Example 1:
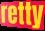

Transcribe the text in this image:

retty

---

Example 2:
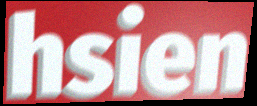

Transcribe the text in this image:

hsien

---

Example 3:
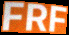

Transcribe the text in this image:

FRF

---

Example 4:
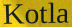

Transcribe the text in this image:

Kotla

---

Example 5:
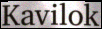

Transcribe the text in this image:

Kavilok